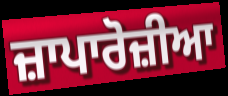
ਜ਼ਾਪਾਰੋਜ਼ੀਆ